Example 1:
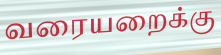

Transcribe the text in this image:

வரையறைக்கு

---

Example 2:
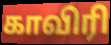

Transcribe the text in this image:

காவிரி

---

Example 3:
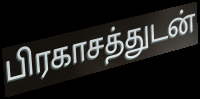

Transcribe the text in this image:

பிரகாசத்துடன்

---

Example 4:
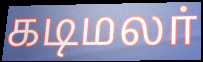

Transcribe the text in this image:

கடிமலர்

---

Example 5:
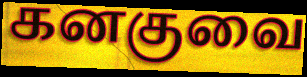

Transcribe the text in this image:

கனகுவை